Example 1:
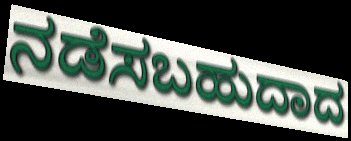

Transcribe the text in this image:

ನಡೆಸಬಹುದಾದ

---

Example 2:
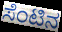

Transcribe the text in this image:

ಸೆಂಟಿನ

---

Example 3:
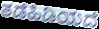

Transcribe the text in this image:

ತಡೆಹಿಡಿಯದೆ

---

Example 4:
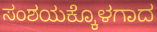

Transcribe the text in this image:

ಸಂಶಯಕ್ಕೊಳಗಾದ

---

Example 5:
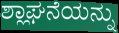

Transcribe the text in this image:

ಶ್ಲಾಘನೆಯನ್ನು